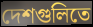
দেশগুলিতে